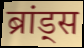
ब्रांड्स